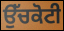
ਉੱਚਕੋਟੀ